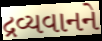
દ્રવ્યવાનને